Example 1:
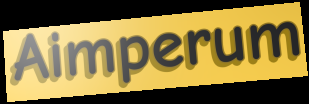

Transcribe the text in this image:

Aimperum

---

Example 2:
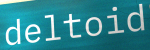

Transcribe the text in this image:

deltoid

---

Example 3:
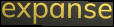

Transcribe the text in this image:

expanse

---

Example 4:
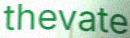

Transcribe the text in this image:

thevate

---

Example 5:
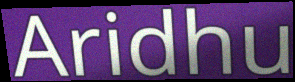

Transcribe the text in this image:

Aridhu